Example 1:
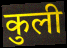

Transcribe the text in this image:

कुली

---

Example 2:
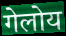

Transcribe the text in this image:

गेलोय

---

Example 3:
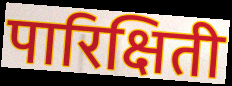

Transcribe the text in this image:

पारिक्षिती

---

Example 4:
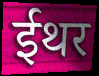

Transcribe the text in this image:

ईथर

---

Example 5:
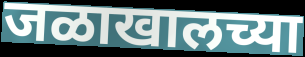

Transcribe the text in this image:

जळाखालच्या